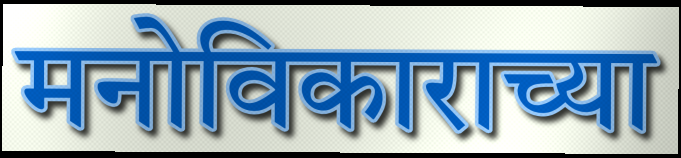
मनोविकाराच्या